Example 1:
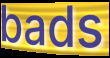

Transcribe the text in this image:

bads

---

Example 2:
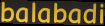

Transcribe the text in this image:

balabadi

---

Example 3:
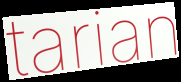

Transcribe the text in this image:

tarian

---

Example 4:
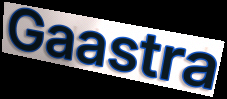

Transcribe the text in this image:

Gaastra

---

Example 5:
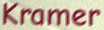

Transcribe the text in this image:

Kramer